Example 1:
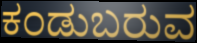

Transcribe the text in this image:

ಕಂಡುಬರುವ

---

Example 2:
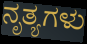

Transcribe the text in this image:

ನೃತ್ಯಗಳು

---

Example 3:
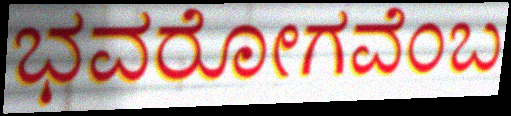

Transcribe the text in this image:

ಭವರೋಗವೆಂಬ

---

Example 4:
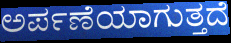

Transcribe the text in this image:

ಅರ್ಪಣೆಯಾಗುತ್ತದೆ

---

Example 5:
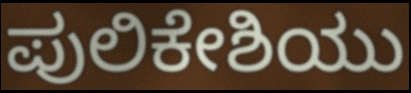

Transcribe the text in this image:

ಪುಲಿಕೇಶಿಯು